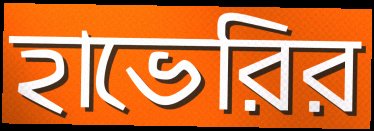
হাভেরির